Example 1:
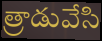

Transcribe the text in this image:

త్రాడువేసి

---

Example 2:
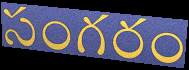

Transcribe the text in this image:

సంగరం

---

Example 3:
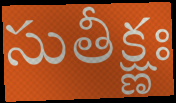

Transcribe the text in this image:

సుతీక్ష్ణః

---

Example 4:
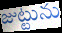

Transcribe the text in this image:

జుట్టును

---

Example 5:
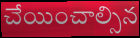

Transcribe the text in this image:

చేయించాల్సిన